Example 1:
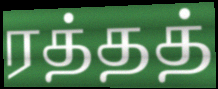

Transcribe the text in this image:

ரத்தத்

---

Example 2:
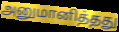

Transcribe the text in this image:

அனுமானித்தது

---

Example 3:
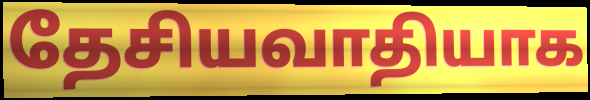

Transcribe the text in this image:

தேசியவாதியாக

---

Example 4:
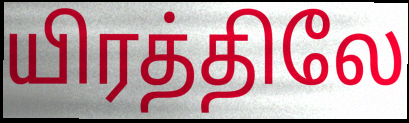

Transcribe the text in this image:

யிரத்திலே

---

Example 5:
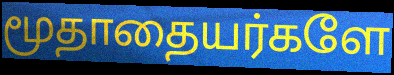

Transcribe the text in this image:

மூதாதையர்களே